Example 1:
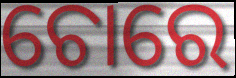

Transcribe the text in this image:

ଚୋରେ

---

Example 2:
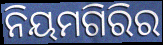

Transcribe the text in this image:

ନିୟମଗିରିର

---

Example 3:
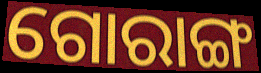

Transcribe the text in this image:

ଗୋରାଙ୍ଗ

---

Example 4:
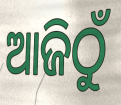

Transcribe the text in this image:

ଆଜିଠୁଁ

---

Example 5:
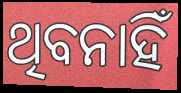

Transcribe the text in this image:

ଥିବନାହିଁ